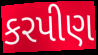
કરપીણ